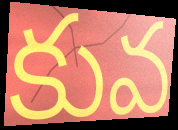
కువ